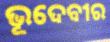
ଭୂଦେବୀର